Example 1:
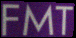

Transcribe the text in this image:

FMT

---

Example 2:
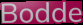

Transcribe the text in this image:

Bodde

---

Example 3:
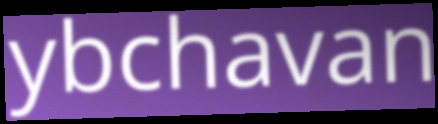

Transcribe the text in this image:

ybchavan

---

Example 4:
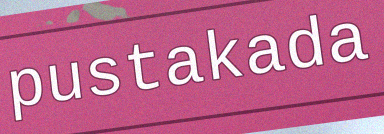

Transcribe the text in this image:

pustakada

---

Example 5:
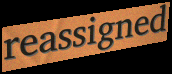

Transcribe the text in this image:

reassigned